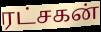
ரட்சகன்